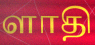
ளாதி